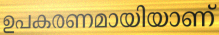
ഉപകരണമായിയാണ്